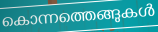
കൊന്നത്തെങ്ങുകൾ